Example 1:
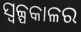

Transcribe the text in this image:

ସ୍ୱଳ୍ପକାଳର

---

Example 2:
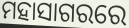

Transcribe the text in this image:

ମହାସାଗରରେ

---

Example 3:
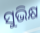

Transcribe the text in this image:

ସୁଭିକ୍ଷ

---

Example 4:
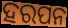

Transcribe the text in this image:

ହରପନ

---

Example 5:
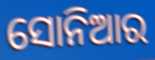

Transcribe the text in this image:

ସୋନିଆର